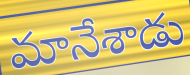
మానేశాడు